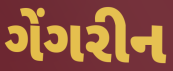
ગેંગરીન